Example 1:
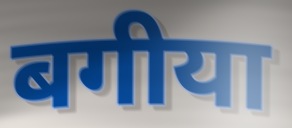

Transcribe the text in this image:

बगीया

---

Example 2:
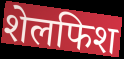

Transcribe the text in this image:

शेलफिश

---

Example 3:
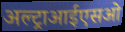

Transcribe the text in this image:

अल्ट्राआईएसओ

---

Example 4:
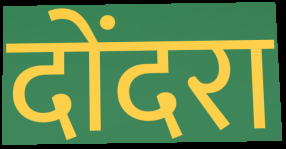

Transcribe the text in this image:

दोंदरा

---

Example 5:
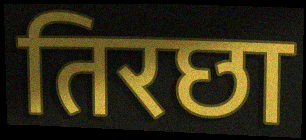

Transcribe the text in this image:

तिरछा